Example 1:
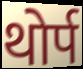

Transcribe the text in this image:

थोर्प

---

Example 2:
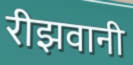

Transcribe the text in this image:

रीझवानी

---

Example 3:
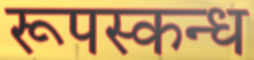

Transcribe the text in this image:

रूपस्कन्ध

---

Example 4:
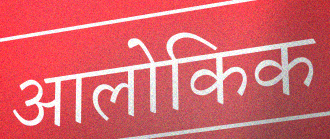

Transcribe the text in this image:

आलोकिक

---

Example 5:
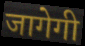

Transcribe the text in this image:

जागेगी